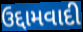
ઉદ્દામવાદી